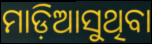
ମାଡ଼ିଆସୁଥିବା